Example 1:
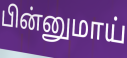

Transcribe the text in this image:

பின்னுமாய்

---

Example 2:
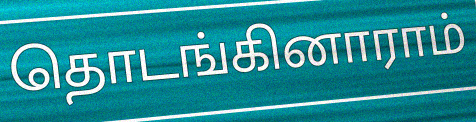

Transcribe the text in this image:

தொடங்கினாராம்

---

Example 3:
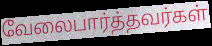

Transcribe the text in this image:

வேலைபார்த்தவர்கள்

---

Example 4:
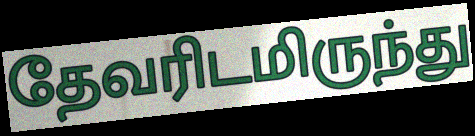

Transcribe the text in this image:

தேவரிடமிருந்து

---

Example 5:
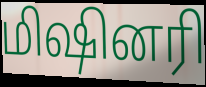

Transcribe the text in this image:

மிஷினரி